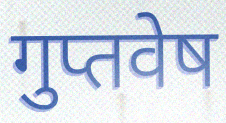
गुप्तवेष